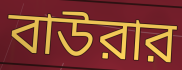
বাউরার